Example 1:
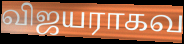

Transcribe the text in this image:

விஜயராகவ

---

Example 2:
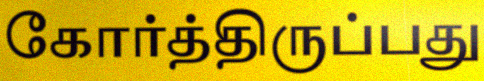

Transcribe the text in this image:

கோர்த்திருப்பது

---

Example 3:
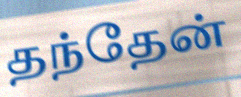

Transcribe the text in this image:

தந்தேன்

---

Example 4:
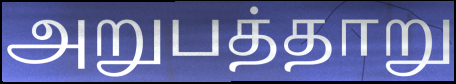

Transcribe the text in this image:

அறுபத்தாறு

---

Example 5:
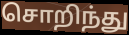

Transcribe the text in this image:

சொறிந்து